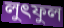
লুৎফুল